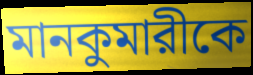
মানকুমারীকে